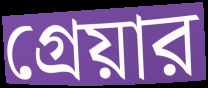
গ্রেয়ার